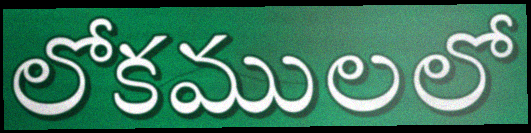
లోకములలో